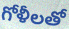
గోళీలతో